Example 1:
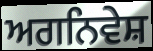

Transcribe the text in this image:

ਅਗਨਿਵੇਸ਼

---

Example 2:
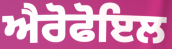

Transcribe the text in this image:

ਐਰੋਫੋਇਲ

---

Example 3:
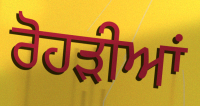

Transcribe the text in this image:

ਰੋਹੜੀਆਂ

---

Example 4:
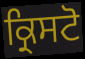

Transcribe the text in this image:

ਕ੍ਰਿਸਟੋ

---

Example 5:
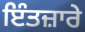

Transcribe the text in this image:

ਇੰਤਜ਼ਾਰੇ